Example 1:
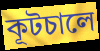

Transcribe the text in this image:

কূটচালে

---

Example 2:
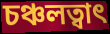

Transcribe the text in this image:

চঞ্চলত্বাৎ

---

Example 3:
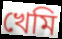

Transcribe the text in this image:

খেমি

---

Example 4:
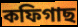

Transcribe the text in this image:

কফিগাছ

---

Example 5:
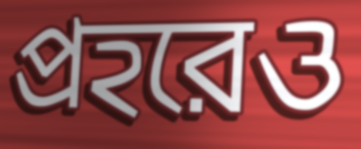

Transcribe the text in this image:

প্রহরেও